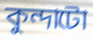
কুন্দাটো